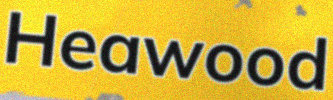
Heawood